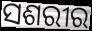
ସଶରୀର